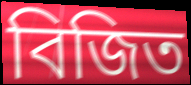
বিজিত